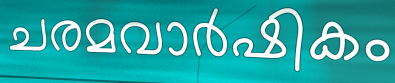
ചരമവാർഷികം